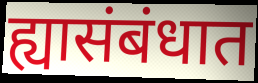
ह्यासंबंधात